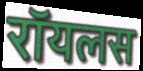
रॉयलस